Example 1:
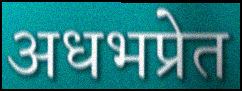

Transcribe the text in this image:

अधभप्रेत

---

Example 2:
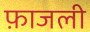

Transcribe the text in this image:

फ़ाजली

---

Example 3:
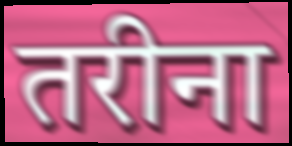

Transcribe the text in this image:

तरीना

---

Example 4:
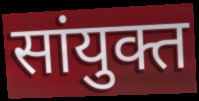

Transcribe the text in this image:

सांयुक्त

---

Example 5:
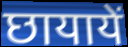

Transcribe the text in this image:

छायायें